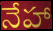
నేహా